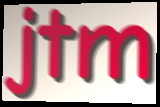
jtm